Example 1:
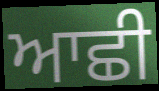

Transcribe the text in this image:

ਆਛੀ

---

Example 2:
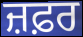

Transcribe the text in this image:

ਜ਼ਫ਼ਰ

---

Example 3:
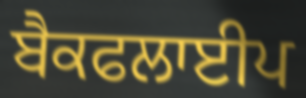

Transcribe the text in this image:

ਬੈਕਫਲਾਈਪ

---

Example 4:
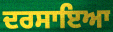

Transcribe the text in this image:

ਦਰਸਾਇਆ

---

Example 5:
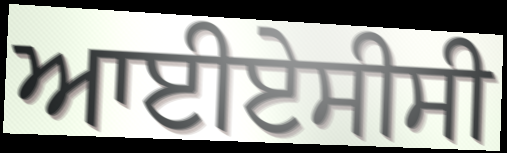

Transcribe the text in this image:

ਆਈਏਸੀਸੀ